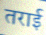
तराई